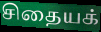
சிதையக்